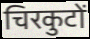
चिरकुटों